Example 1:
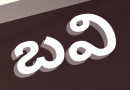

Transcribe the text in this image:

బవి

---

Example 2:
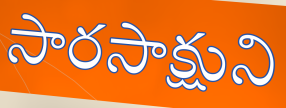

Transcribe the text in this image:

సారసాక్షుని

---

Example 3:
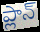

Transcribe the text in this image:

ప్లాన్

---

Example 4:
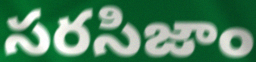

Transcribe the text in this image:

సరసిజాం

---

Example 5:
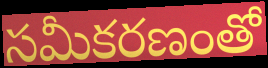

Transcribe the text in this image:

సమీకరణంతో